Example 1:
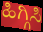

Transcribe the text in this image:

ಹಿಗ್ಗಿಸಿ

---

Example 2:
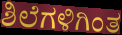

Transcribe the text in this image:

ಶಿಲೆಗಳಿಗಿಂತ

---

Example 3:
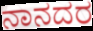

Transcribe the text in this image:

ನಾನದರ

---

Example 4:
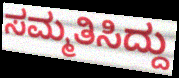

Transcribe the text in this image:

ಸಮ್ಮತಿಸಿದ್ದು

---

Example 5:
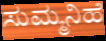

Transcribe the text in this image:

ಸುಮ್ಮನಿಹೆ